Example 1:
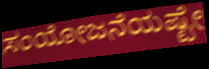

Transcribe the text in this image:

ಸಂಯೋಜನೆಯಷ್ಟೇ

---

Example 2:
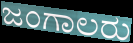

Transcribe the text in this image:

ಜಂಗಾಲರು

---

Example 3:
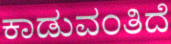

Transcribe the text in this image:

ಕಾಡುವಂತಿದೆ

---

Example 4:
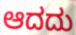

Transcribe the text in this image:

ಆದದು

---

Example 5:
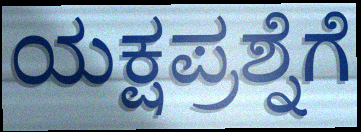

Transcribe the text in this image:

ಯಕ್ಷಪ್ರಶ್ನೆಗೆ